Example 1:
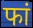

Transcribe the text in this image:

फां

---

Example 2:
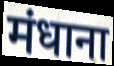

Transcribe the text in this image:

मंधाना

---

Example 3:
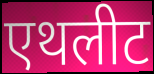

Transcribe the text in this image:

एथलीट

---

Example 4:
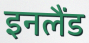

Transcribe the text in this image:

इनलैंड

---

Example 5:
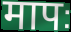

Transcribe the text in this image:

मापः